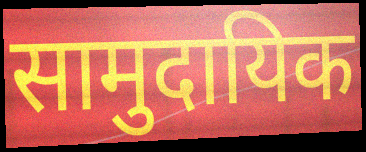
सामुदायिक